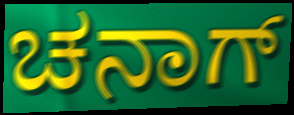
ಚನಾಗ್